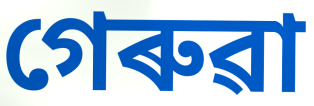
গেৰুৱা